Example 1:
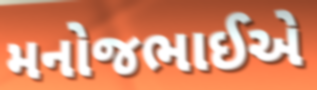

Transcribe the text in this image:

મનોજભાઈએ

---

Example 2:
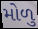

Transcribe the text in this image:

મોળુ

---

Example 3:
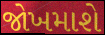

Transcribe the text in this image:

જોખમાશે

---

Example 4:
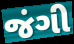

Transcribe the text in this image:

જંગી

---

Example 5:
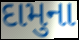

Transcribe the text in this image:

દામુના